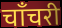
चाँचरी